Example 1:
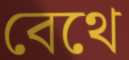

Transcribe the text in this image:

বেথে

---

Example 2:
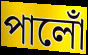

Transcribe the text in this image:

পালোঁ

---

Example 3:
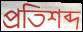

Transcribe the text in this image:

প্ৰতিশব্দ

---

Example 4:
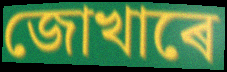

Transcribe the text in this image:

জোখাৰে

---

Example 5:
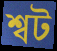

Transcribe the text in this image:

শ্বট